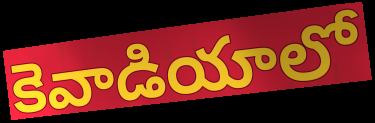
కెవాడియాలో